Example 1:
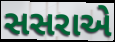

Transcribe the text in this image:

સસરાએ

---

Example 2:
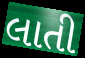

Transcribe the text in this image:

લાતી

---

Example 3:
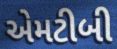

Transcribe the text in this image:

એમટીબી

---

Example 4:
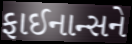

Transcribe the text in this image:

ફાઈનાન્સને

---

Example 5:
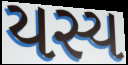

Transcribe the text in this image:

યસ્ય